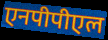
एनपीपीएल